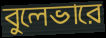
বুলেভারে